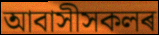
আবাসীসকলৰ